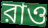
রাও